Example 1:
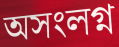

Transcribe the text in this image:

অসংলগ্ন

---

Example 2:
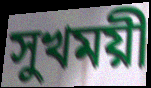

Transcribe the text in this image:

সুখময়ী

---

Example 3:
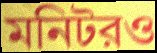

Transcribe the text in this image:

মনিটরও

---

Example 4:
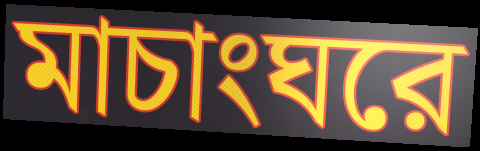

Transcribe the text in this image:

মাচাংঘরে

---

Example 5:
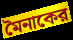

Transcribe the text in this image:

মৈনাকের